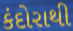
કંદોરાથી